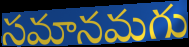
సమానమగు